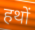
हथों